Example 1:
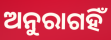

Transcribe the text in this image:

ଅନୁରାଗହିଁ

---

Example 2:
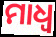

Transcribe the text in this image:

ମାଧ୍ଵ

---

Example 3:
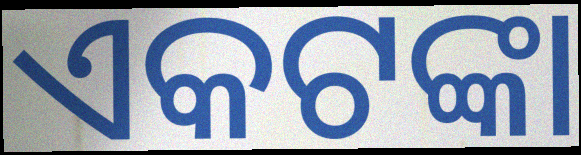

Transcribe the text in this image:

ଏକଟଙ୍କା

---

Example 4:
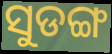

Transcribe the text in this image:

ସୁଡଙ୍ଗ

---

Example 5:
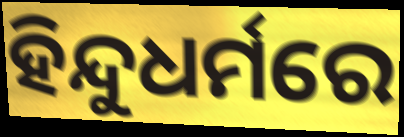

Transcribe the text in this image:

ହିନ୍ଦୁଧର୍ମରେ